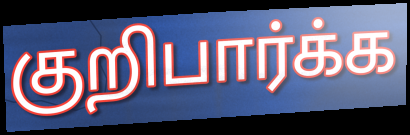
குறிபார்க்க